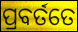
ପ୍ରବର୍ତତେ